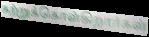
கற்றுக்கொள்கிறார்கள்